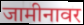
जामीनावर